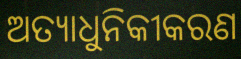
ଅତ୍ୟାଧୁନିକୀକରଣ